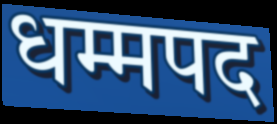
धम्मपद